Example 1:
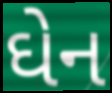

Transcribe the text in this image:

ઘેન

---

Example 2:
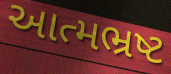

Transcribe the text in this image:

આત્મભ્રષ્ટ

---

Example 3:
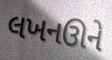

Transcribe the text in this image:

લખનઊને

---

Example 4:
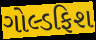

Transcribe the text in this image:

ગોલ્ડફિશ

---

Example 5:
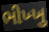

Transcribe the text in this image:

ભીખ્ખુ